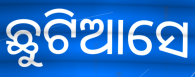
ଛୁଟିଆସେ